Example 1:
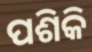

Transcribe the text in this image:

ପଶିକି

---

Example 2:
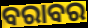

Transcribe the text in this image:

ବରାବର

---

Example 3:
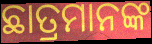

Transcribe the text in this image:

ଛାତ୍ରମାନଙ୍କ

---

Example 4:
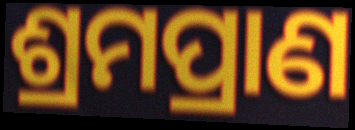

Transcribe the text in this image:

ଶ୍ରମପ୍ରାଣ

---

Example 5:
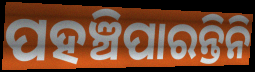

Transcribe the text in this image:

ପହଞ୍ଚିପାରନ୍ତିନି